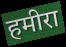
हमीरा